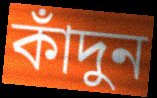
কাঁদুন